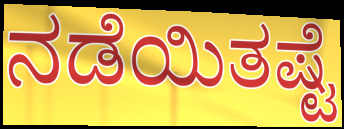
ನಡೆಯಿತಷ್ಟೆ